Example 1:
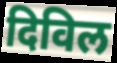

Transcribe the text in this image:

दिविल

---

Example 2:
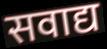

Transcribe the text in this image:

सवाद्य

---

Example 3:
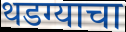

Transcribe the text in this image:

थडग्याचा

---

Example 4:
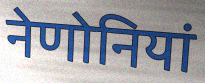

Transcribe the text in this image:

नेणोनियां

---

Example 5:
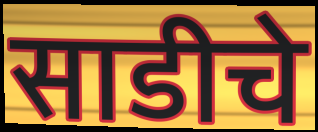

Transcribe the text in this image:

साडीचे